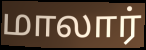
மாலார்